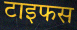
टाइफस